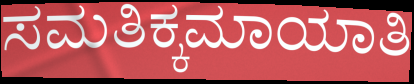
ಸಮತಿಕ್ಕಮಾಯಾತಿ